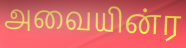
அவையின்ர